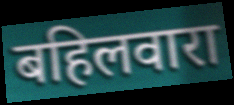
बहिलवारा